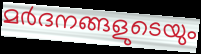
മർദനങ്ങളുടെയും